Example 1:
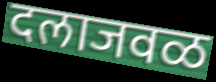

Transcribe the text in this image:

दलाजवळ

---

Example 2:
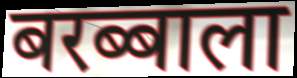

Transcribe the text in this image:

बरब्बाला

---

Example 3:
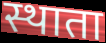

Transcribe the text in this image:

स्थाता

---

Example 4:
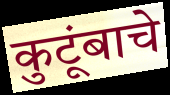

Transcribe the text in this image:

कुटूंबाचे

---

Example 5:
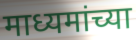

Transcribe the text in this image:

माध्यमांच्या